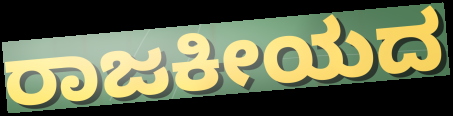
ರಾಜಕೀಯದ